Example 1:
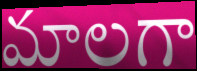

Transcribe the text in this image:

మాలగా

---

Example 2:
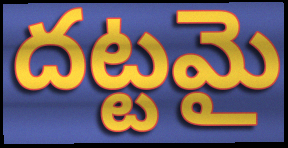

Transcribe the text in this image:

దట్టమై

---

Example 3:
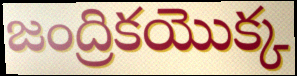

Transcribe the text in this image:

జంద్రికయొక్క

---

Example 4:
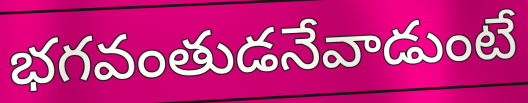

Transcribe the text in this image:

భగవంతుడనేవాడుంటే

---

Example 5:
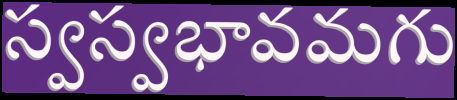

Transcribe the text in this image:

స్వస్వభావమగు